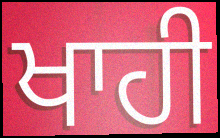
ਖਾਹੀ